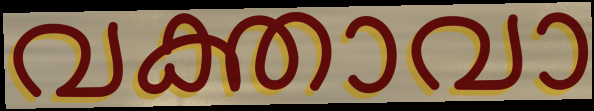
വക്താവാ